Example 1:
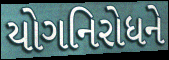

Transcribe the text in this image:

યોગનિરોધને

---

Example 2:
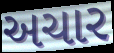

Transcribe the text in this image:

અચાર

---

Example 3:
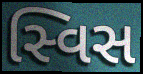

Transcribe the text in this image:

સ્વિસ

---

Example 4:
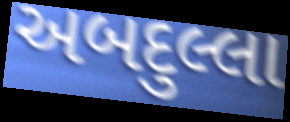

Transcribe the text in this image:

અબદુલ્લા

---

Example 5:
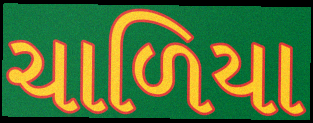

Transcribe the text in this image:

ચાળિયા